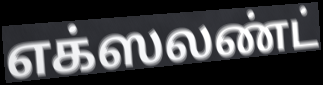
எக்ஸலண்ட்